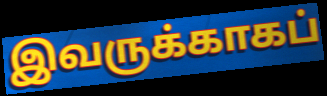
இவருக்காகப்